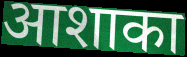
आशाका